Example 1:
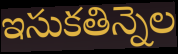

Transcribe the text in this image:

ఇసుకతిన్నెల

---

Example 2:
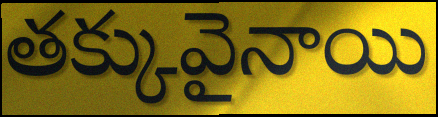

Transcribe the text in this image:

తక్కువైనాయి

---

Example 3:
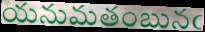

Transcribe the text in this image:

యనుమతంబునఁ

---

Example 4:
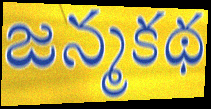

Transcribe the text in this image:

జన్మకథ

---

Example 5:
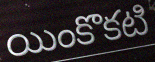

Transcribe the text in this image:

యింకొకటి